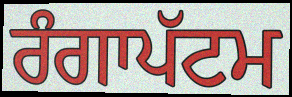
ਰੰਗਾਪੱਟਮ